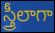
స్త్రీలాగా